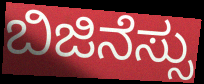
ಬಿಜಿನೆಸ್ಸು